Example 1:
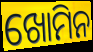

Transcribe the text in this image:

ଖୋମିନ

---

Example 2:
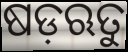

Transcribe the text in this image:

ଷଡ଼ଋତୁ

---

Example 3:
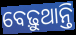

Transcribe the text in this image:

ବେଢ଼ୁଥାନ୍ତି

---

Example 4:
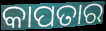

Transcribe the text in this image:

କାପତାର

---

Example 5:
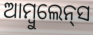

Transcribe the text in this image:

ଆମ୍ବୁଲେନ୍‍ସ